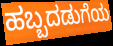
ಹಬ್ಬದಡುಗೆಯ